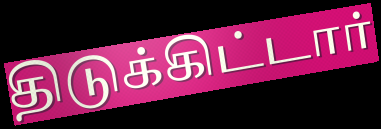
திடுக்கிட்டார்